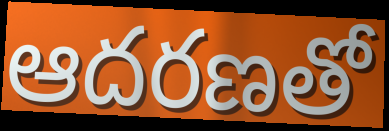
ఆదరణతో